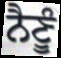
ਨੈਣੂੰ